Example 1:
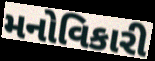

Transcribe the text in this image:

મનોવિકારી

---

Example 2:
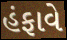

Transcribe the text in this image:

હંફાવે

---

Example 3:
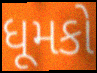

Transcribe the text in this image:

ધૂમકો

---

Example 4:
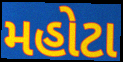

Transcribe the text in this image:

મહોટા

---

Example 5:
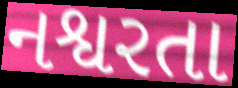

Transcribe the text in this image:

નશ્વરતા